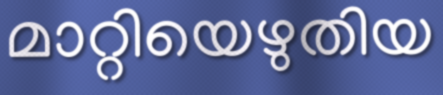
മാറ്റിയെഴുതിയ